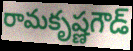
రామకృష్ణగౌడ్